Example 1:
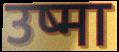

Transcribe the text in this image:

उष्मा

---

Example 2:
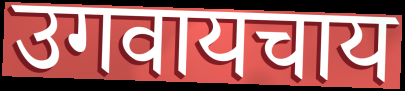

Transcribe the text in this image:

उगवायचाय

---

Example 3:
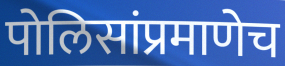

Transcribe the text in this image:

पोलिसांप्रमाणेच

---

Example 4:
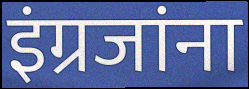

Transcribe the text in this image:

इंग्रजांना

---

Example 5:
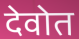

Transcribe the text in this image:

देवोत